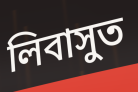
লিবাসুত